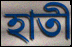
হাতী